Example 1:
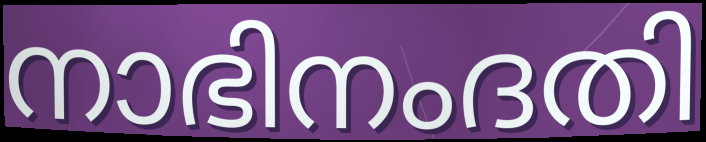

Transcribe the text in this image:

നാഭിനംദതി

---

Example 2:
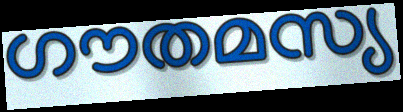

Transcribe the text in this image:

ഗൗതമസ്യ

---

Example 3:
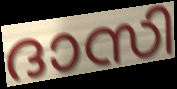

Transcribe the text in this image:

ദാസി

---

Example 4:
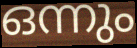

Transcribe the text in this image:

ഒന്നും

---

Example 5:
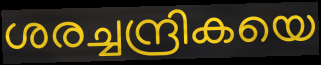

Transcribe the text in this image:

ശരച്ചന്ദ്രികയെ